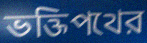
ভক্তিপথের